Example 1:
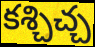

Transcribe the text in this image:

కశ్చిచ్చ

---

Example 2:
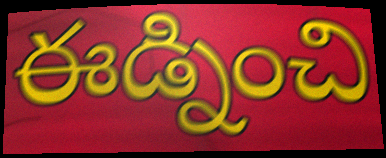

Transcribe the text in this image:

ఈడ్నించి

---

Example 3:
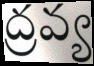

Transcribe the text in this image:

ద్రవ్య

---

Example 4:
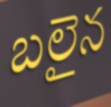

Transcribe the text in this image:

బలైన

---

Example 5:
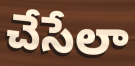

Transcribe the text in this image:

చేసేలా